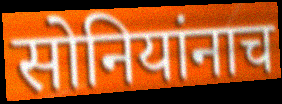
सोनियांनाच